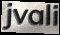
jvali